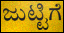
ಜುಟ್ಟಿಗೆ